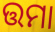
ତ୍ତମା